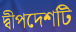
দ্বীপদেশটি